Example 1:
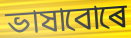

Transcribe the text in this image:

ভাষাবোৰে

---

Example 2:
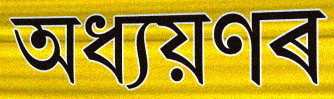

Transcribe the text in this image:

অধ্যয়ণৰ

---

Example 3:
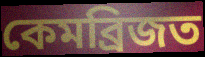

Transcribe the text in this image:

কেমব্ৰিজত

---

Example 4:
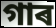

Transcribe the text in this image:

গাৰ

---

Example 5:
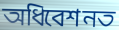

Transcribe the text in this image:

অধিবেশনত